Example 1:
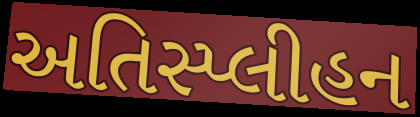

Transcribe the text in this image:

અતિસ્પ્લીહન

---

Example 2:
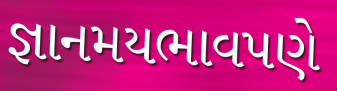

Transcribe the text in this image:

જ્ઞાનમયભાવપણે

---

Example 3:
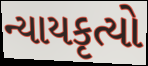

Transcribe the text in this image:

ન્યાયકૃત્યો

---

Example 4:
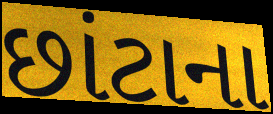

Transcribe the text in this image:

છાંટાના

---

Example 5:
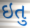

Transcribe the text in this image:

ઇતુ